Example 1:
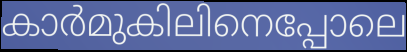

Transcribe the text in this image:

കാർമുകിലിനെപ്പോലെ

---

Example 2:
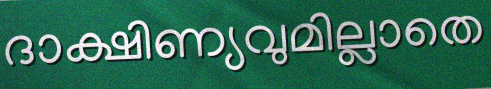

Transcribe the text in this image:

ദാക്ഷിണ്യവുമില്ലാതെ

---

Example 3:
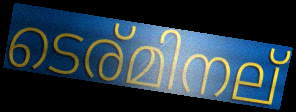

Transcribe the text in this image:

ടെര്മിനല്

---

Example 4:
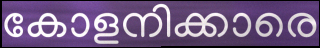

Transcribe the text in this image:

കോളനിക്കാരെ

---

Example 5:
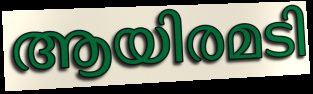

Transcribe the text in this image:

ആയിരമടി